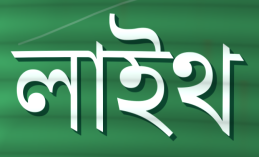
লাইথ